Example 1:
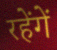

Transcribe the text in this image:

रहेंगें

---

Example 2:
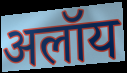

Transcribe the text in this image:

अलॉय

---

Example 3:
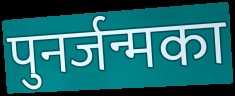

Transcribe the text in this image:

पुनर्जन्मका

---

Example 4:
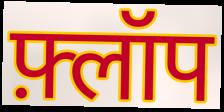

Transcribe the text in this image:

फ़्लॉप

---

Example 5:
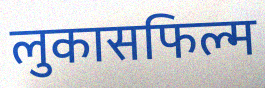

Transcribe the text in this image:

लुकासफिल्म